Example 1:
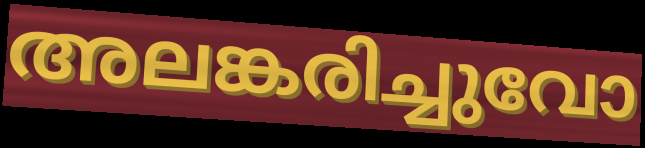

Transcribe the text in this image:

അലങ്കരിച്ചുവോ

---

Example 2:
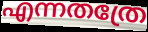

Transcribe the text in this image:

എന്നതത്രേ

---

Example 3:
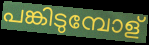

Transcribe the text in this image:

പങ്കിടുമ്പോള്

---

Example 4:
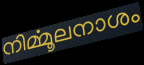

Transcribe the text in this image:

നിൎമ്മൂലനാശം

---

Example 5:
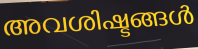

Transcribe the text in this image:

അവശിഷ്ടങ്ങൾ